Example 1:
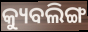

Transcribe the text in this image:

କ୍ୟୁବଲିଙ୍ଗ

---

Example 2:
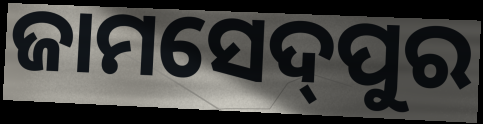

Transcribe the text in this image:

ଜାମସେଦ୍‌ପୁର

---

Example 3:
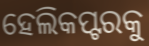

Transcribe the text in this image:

ହେଲିକପ୍ଟରକୁ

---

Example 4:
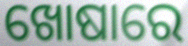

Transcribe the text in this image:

ଖୋଷାରେ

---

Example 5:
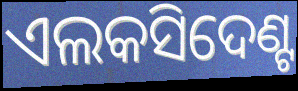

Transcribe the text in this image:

ଏଲକସିଦେଣ୍ଟ